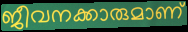
ജീവനക്കാരുമാണ്